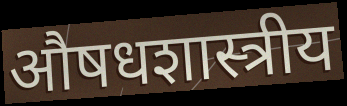
औषधशास्त्रीय